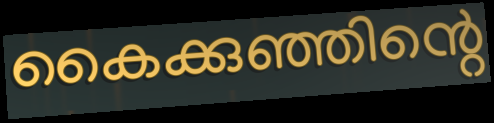
കൈക്കുഞ്ഞിന്റെ